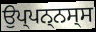
ਉਪ੍ਪਨ੍ਨਸ੍ਸ